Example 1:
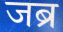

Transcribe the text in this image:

जब्र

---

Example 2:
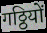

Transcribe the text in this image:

गठ्ठियों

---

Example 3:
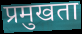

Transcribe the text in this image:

प्रमुखता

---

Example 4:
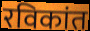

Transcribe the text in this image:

रविकांत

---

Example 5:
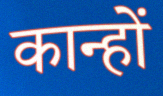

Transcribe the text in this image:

कान्हों